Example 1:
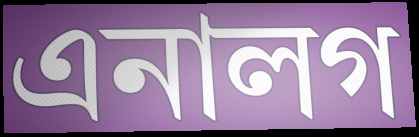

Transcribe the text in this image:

এনালগ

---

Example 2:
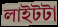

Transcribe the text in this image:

লাইটটা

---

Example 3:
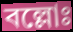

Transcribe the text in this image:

বল্লোঃ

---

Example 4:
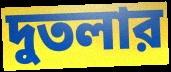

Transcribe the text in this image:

দুতলার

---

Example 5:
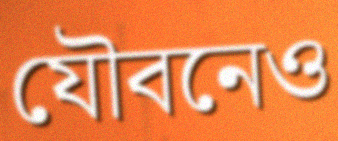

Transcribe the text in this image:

যৌবনেও